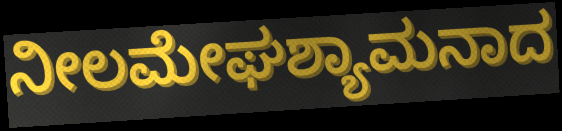
ನೀಲಮೇಘಶ್ಯಾಮನಾದ